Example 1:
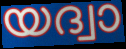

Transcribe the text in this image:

യദ്വാ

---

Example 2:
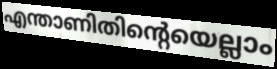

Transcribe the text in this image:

എന്താണിതിന്റെയെല്ലാം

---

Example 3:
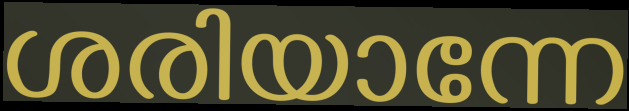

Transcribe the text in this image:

ശരിയാന്നേ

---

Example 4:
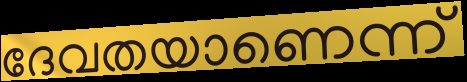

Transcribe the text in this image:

ദേവതയാണെന്ന്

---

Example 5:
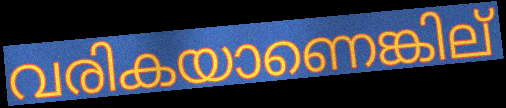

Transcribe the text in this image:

വരികയാണെങ്കില്